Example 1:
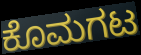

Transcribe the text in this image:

ಕೊಮಗಟ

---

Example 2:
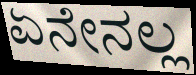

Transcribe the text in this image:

ಏನೇನಲ್ಲ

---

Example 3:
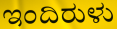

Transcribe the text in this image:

ಇಂದಿರುಳು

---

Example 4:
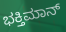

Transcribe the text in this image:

ಭಕ್ತಿಮಾನ್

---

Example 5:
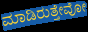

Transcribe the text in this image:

ಮಾಡಿರುತ್ತೇವೋ